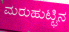
ಮರುಹುಟ್ಟಿನ